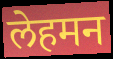
लेहमन